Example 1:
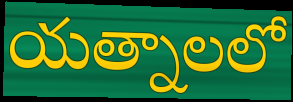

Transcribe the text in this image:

యత్నాలలో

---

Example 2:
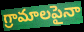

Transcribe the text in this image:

గ్రామాలపైనా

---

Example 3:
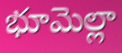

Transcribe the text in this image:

భూమెల్లా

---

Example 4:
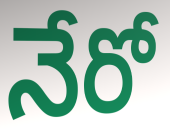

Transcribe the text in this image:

నేరో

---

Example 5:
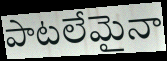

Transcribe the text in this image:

పాటలేమైనా